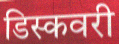
डिस्कवरी